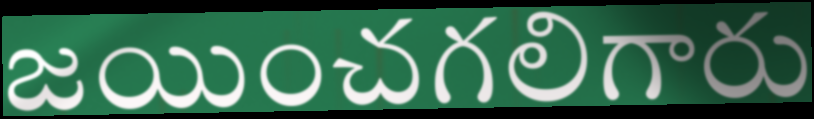
జయించగలిగారు